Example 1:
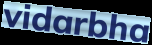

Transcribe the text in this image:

vidarbha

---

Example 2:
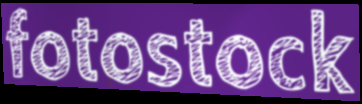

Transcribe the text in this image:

fotostock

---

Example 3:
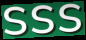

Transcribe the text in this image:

sss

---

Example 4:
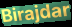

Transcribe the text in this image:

Birajdar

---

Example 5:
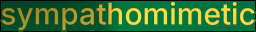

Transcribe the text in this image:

sympathomimetic